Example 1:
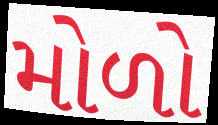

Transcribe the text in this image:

મોળો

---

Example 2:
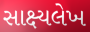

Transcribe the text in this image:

સાક્ષ્યલેખ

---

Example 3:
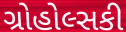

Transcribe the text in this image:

ગ્રોહોલ્સકી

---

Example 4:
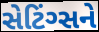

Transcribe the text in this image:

સેટિંગ્સને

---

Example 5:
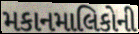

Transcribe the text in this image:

મકાનમાલિકોની